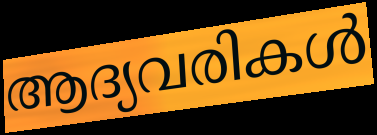
ആദ്യവരികൾ